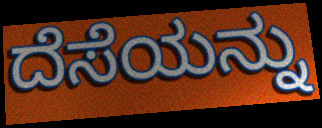
ದೆಸೆಯನ್ನು